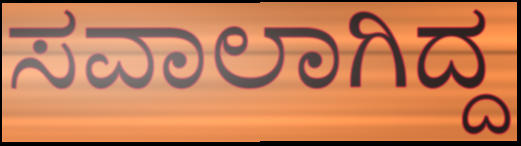
ಸವಾಲಾಗಿದ್ದ